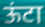
ऊंटा